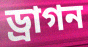
ড্রাগন